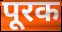
पूरक